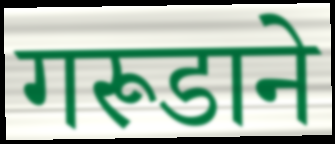
गरूडाने